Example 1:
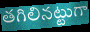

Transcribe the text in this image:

తగిలినట్టుగా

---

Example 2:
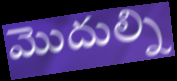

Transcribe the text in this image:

మొదుల్ని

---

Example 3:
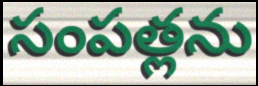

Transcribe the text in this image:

సంపత్లను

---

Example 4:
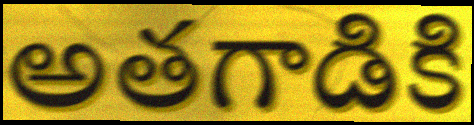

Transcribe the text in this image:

అతగాడికి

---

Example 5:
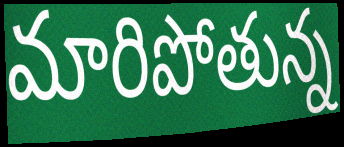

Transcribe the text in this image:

మారిపోతున్న